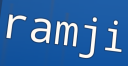
ramji